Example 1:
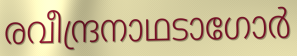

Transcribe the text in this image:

രവീന്ദ്രനാഥടാഗോർ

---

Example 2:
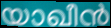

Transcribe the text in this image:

യാഖീൻ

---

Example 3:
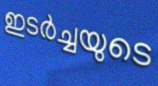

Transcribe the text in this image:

ഇടർച്ചയുടെ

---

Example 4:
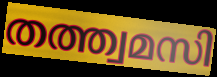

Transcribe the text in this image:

തത്ത്വമസി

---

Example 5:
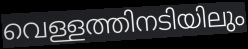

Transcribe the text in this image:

വെള്ളത്തിനടിയിലും